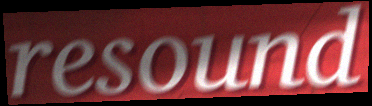
resound